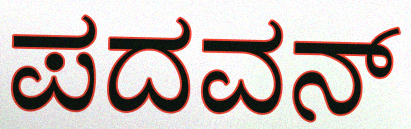
ಪದವನ್